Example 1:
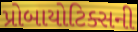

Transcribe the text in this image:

પ્રોબાયોટિક્સની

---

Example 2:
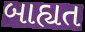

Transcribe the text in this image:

બાહ્યત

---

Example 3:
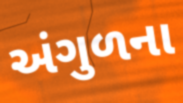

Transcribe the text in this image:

અંગુળના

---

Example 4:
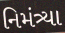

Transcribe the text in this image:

નિમંત્ર્યા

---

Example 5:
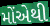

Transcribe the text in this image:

મોંએથી